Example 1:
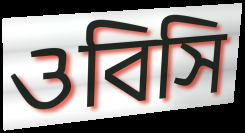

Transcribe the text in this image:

ওবিসি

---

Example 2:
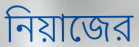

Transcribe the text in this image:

নিয়াজের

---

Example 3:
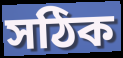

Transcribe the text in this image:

সঠিক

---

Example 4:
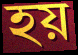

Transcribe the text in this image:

হয়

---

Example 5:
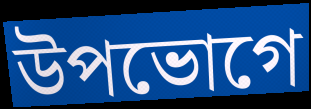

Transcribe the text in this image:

উপভোগে